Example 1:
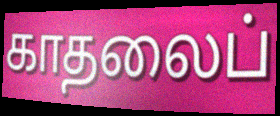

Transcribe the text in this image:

காதலைப்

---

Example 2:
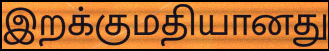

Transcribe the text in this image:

இறக்குமதியானது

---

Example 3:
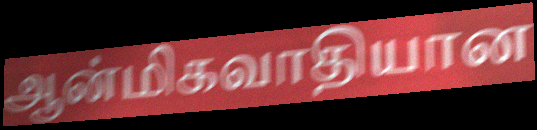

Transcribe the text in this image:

ஆன்மிகவாதியான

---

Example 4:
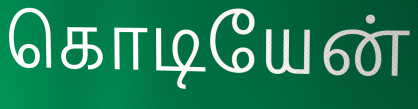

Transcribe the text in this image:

கொடியேன்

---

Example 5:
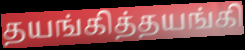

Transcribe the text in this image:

தயங்கித்தயங்கி